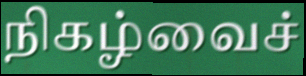
நிகழ்வைச்